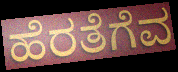
ಹೆರತೆಗೆವ